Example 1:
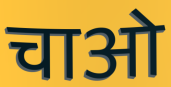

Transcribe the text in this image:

चाओ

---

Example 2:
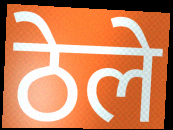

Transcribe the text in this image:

ठेले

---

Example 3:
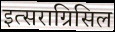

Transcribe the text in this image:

इत्सराग्रिसिल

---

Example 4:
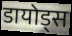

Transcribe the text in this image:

डायोड्स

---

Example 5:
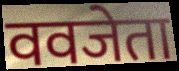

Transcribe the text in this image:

ववजेता